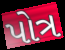
પોત્ર